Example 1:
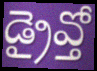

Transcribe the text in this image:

డ్రైవ్తో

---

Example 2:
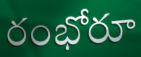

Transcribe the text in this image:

రంభోరూ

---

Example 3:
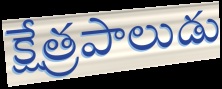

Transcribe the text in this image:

క్షేత్రపాలుడు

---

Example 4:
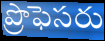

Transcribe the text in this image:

ప్రొఫెసరు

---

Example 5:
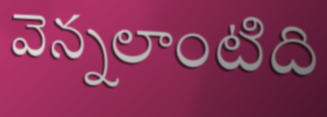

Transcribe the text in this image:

వెన్నలాంటిది